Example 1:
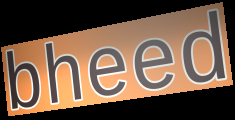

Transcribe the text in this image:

bheed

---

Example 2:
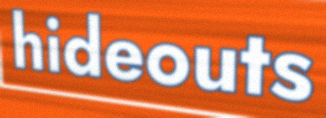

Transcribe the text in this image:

hideouts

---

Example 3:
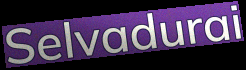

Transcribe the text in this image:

Selvadurai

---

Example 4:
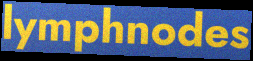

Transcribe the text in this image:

lymphnodes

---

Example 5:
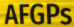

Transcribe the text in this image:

AFGPs